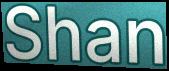
Shan